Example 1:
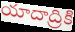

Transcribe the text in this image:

యాదాద్రికి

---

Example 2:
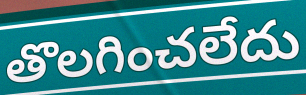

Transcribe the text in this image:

తొలగించలేదు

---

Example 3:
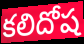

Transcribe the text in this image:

కలిదోష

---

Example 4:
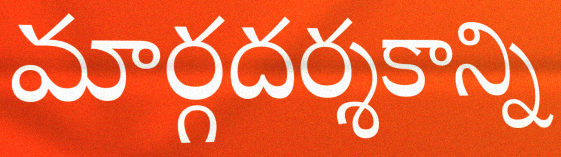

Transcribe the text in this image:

మార్గదర్శకాన్ని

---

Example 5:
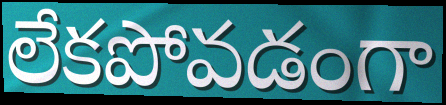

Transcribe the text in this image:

లేకపోవడంగా